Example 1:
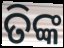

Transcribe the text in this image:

ତିଙ୍କ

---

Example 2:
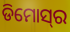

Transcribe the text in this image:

ଡିମୋସ୍‌ର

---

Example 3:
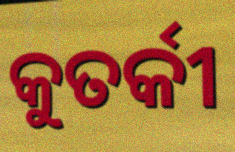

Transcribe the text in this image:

କୁତର୍କୀ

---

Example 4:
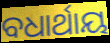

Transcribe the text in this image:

ବଧାର୍ଥାୟ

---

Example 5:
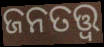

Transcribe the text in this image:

ଜନତତ୍ତ୍ୱ